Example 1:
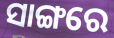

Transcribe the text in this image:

ସାଙ୍ଗରେ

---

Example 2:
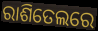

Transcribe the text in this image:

ରାଶିତେଲରେ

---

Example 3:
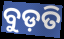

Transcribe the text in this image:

ବୁଡ଼ତି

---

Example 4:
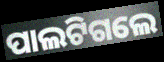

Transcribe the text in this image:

ପାଲଟିଗଲେ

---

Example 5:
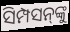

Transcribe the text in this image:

ସିମ୍ପସନ୍‍ଙ୍କୁ